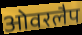
ओवरलैप